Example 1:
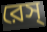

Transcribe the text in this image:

রেস্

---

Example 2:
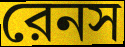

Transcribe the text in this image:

রেনস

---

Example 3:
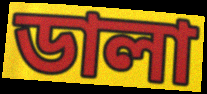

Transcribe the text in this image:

ডালা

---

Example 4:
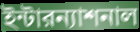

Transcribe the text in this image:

ইন্টারন্যাশনাল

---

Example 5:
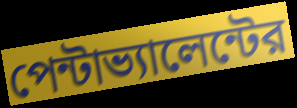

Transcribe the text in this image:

পেন্টাভ্যালেন্টের